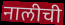
नालीची